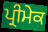
ਪ੍ਰੀਮੇਕ